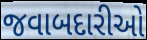
જવાબદારીઓ